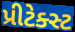
પ્રીટેક્સ્ટ